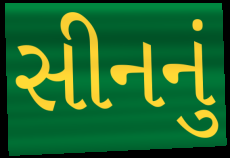
સીનનું